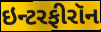
ઇન્ટરફીરૉન